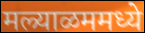
मल्याळममध्ये